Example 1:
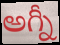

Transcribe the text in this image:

అగ్నీ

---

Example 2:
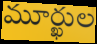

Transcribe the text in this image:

మూర్ఖుల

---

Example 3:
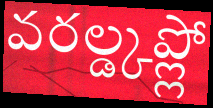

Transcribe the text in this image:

వరల్డ్కప్ల్లో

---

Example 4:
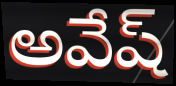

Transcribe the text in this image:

అవేష్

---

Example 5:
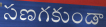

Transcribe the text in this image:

సణగకుండా